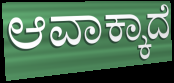
ಆವಾಕ್ಕಾದೆ